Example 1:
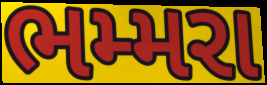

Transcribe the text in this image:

ભમ્મરા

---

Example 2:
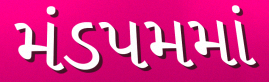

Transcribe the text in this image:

મંડપમમાં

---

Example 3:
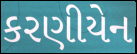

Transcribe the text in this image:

કરણીયેન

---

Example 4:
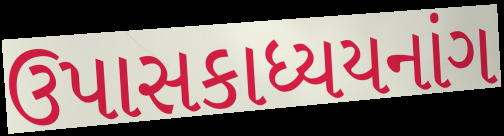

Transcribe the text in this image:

ઉપાસકાધ્યયનાંગ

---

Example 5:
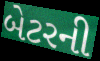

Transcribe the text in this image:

બેટરની